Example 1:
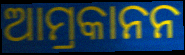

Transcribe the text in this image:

ଆମ୍ରକାନନ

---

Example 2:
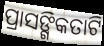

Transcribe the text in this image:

ପ୍ରାସଙ୍ଗିକତାଟି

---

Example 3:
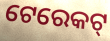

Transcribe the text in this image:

ଟେରେକଟ୍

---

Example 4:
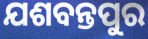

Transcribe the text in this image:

ଯଶବନ୍ତପୁର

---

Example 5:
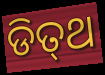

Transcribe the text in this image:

ଡିତ୍‍ଥ